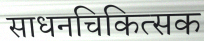
साधनचिकित्सक